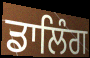
ਡਾਲਿੰਗ